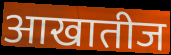
आखातीज